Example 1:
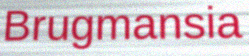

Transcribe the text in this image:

Brugmansia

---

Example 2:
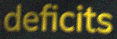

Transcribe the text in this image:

deficits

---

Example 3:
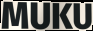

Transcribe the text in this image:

MUKU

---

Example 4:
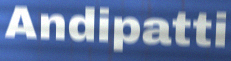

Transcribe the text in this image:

Andipatti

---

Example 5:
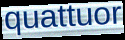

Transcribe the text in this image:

quattuor